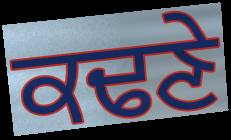
ਕਢਣੇ